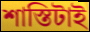
শাস্তিটাই